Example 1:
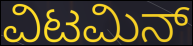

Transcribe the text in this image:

ವಿಟಮಿನ್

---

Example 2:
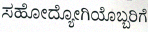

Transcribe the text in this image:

ಸಹೋದ್ಯೋಗಿಯೊಬ್ಬರಿಗೆ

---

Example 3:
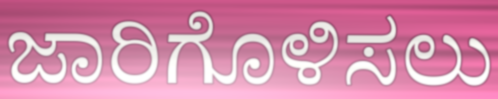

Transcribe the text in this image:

ಜಾರಿಗೊಳಿಸಲು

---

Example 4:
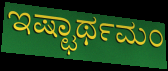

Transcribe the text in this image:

ಇಷ್ಟಾರ್ಥಮಂ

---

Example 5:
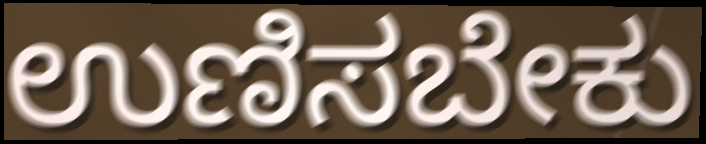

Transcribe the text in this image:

ಉಣಿಸಬೇಕು